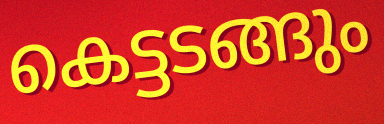
കെട്ടടങ്ങും